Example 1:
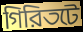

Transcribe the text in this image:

গিরিতটে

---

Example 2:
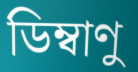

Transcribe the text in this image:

ডিম্বাণু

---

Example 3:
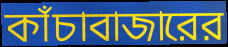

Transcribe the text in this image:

কাঁচাবাজারের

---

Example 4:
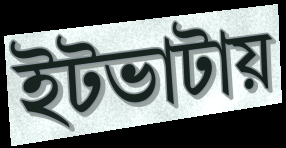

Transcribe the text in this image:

ইটভাটায়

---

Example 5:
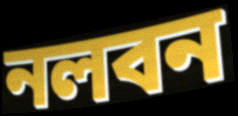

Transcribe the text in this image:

নলবন